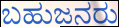
ಬಹುಜನರು